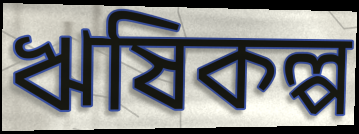
ঋষিকল্প